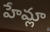
హేమ్లా